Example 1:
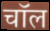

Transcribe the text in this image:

चॉल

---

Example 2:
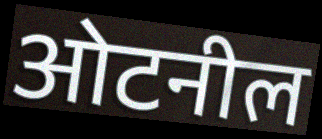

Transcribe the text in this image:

ओटनील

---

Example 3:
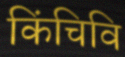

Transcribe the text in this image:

किंचिवि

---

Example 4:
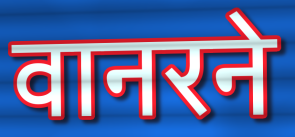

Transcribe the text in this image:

वानरने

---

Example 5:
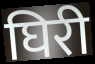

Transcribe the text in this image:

घिरी